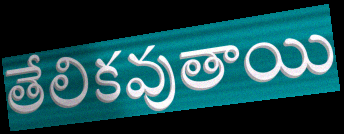
తేలికవుతాయి